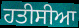
ਹਤੀਸੀਆ